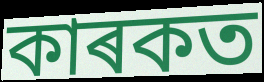
কাৰকত